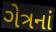
ગેત્રનાં